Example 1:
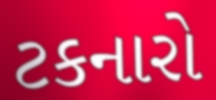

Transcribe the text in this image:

ટકનારો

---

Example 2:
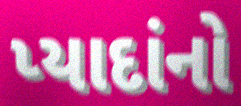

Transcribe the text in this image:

પ્યાદાંનો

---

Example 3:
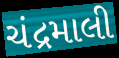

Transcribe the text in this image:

ચંદ્રમાલી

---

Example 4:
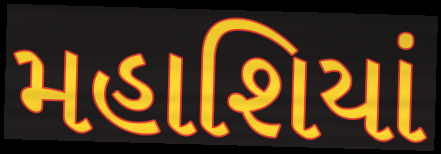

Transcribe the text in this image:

મહાશિયાં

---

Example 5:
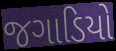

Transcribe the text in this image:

જગાડિયો